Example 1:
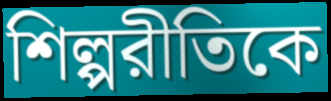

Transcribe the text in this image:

শিল্পরীতিকে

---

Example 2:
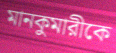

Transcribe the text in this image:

মানকুমারীকে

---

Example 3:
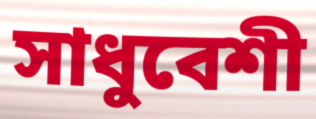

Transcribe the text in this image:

সাধুবেশী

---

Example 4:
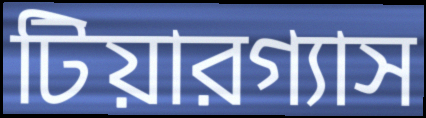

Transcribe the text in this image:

টিয়ারগ্যাস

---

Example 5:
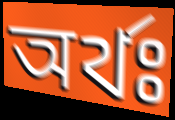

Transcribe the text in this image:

অর্থঃ